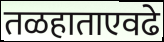
तळहाताएवढे